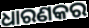
ଧାରଣକର